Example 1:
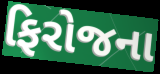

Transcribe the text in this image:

ફિરોજના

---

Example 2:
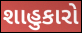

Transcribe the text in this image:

શાહુકારો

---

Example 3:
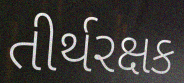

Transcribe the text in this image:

તીર્થરક્ષક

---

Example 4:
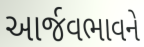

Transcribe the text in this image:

આર્જવભાવને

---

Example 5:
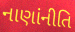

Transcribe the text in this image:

નાણાંનીતિ